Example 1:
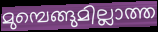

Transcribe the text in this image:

മുമ്പെങ്ങുമില്ലാത്ത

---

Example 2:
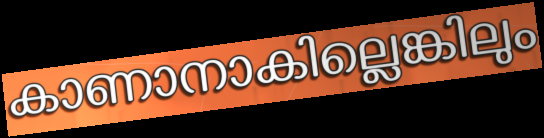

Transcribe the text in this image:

കാണാനാകില്ലെങ്കിലും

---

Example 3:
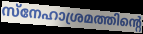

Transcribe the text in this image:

സ്നേഹാശ്രമത്തിന്റെ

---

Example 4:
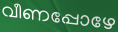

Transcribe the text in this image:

വീണപ്പോഴേ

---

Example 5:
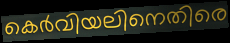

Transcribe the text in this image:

കെർവിയലിനെതിരെ